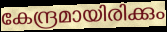
കേന്ദ്രമായിരിക്കും